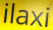
ilaxi